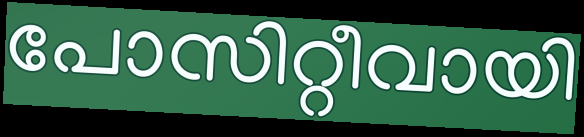
പോസിറ്റീവായി